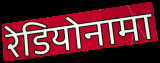
रेडियोनामा